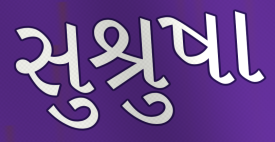
સુશ્રુષા